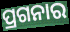
ପ୍ରଗନାର